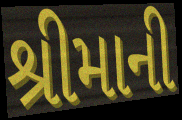
શ્રીમાની